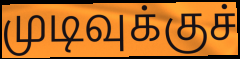
முடிவுக்குச்